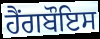
ਹੈਂਗਬੌਇਸ